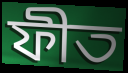
ফীত